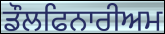
ਡੌਲਫਿਨਾਰੀਅਮ